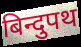
बिन्दुपथ